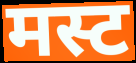
मस्ट